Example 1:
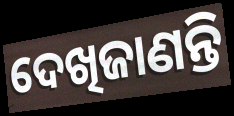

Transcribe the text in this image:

ଦେଖିଜାଣନ୍ତି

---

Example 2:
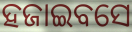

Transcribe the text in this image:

ହଜାଇବସେ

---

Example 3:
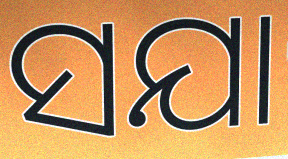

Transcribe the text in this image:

ସଯା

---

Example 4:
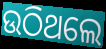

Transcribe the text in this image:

ଉଠିଥଲେ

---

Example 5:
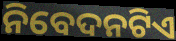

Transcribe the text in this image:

ନିବେଦନଟିଏ